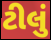
ટીલું